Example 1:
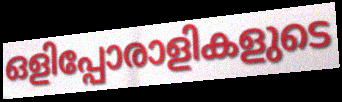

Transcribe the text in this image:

ഒളിപ്പോരാളികളുടെ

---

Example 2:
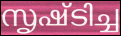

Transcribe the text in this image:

സൃഷ്‌ടിച്ച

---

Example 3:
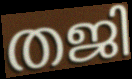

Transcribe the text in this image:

തജി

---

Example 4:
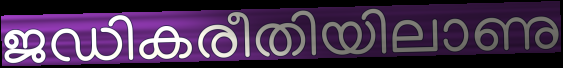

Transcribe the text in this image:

ജഡികരീതിയിലാണു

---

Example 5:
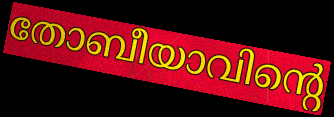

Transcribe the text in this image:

തോബീയാവിന്റെ